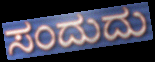
ಸಂದುದು